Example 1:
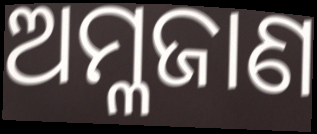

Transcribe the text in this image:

ଅମ୍ଳଜାଣ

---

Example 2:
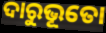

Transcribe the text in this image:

ଦାରୁଭୂତୋ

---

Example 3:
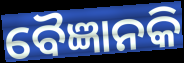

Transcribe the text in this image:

ବୈଜ୍ଞାନକି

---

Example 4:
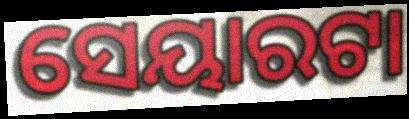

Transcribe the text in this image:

ସେୟାରଟା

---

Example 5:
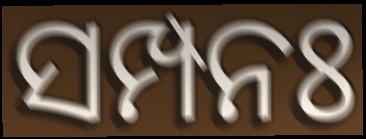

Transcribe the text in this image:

ସମ୍ପନଃ